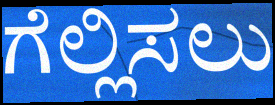
ಗೆಲ್ಲಿಸಲು